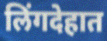
लिंगदेहात